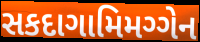
સકદાગામિમગ્ગેન